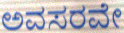
ಅವಸರವೇ